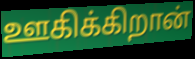
ஊகிக்கிறான்